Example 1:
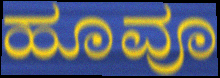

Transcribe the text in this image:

ಹೂವೂ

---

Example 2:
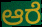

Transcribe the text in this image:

ಆರೆ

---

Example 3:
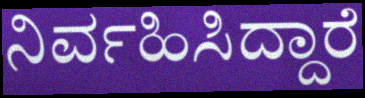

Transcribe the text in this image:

ನಿರ್ವಹಿಸಿದ್ದಾರೆ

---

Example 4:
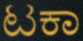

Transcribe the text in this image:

ಟಕಾ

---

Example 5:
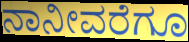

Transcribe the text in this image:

ನಾನೀವರೆಗೂ